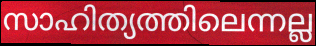
സാഹിത്യത്തിലെന്നല്ല